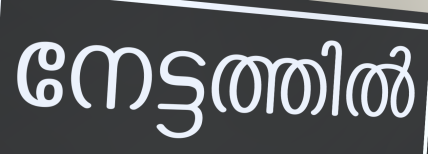
നേട്ടത്തിൽ